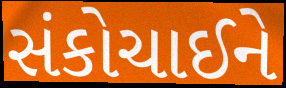
સંકોચાઈને